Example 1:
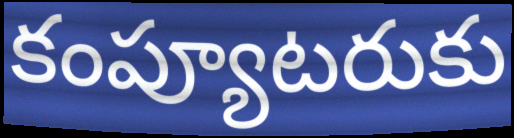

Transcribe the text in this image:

కంప్యూటరుకు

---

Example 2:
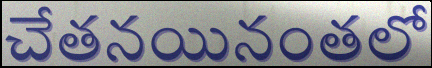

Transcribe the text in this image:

చేతనయినంతలో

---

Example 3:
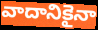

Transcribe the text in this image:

వాదానికైనా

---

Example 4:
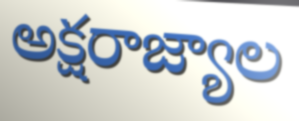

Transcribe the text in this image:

అక్షరాజ్యాల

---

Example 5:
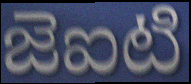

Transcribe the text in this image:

జెఐటి